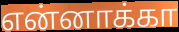
என்னாக்கா